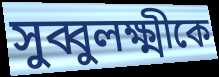
সুব্বুলক্ষ্মীকে